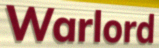
Warlord